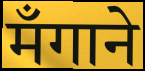
मँगाने